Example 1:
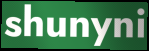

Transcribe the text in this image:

shunyni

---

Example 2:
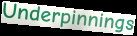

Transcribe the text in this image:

Underpinnings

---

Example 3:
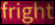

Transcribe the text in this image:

fright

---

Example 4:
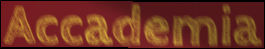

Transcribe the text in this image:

Accademia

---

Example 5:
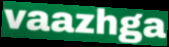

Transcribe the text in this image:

vaazhga